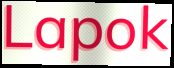
Lapok